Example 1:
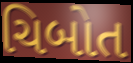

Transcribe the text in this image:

ચિબોત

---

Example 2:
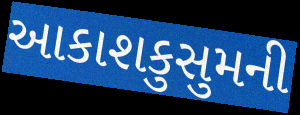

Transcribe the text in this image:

આકાશકુસુમની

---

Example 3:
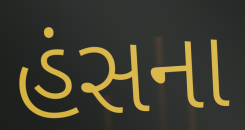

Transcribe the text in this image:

હંસના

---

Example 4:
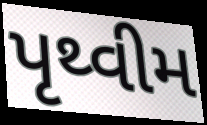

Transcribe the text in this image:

પૃથ્વીમ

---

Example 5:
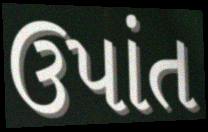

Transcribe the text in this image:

ઉપાંત